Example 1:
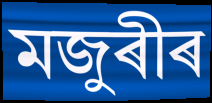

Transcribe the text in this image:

মজুৰীৰ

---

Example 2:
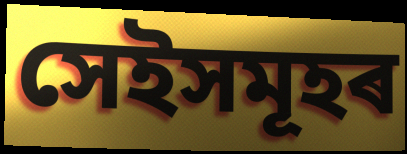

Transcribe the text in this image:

সেইসমূহৰ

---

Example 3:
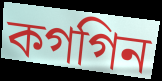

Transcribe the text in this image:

কগগিন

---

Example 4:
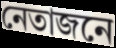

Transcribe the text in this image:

নেতাজনে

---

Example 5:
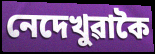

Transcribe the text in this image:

নেদেখুৱাকৈ